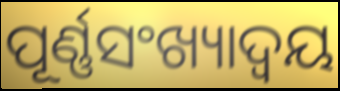
ପୂର୍ଣ୍ଣସଂଖ୍ୟାଦ୍ଵୟ